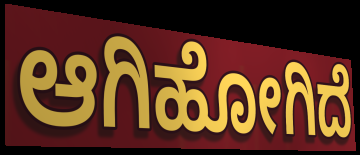
ಆಗಿಹೋಗಿದೆ